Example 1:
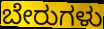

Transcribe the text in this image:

ಬೇರುಗಳು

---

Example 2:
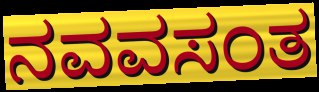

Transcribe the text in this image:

ನವವಸಂತ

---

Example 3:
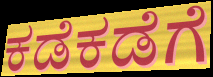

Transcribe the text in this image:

ಕಡೆಕಡೆಗೆ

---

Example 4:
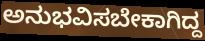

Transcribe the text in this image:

ಅನುಭವಿಸಬೇಕಾಗಿದ್ದ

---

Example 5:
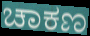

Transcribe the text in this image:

ಚಾಕಣ